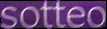
sotteo